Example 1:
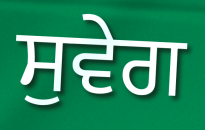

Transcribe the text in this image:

ਸੁਵੇਗ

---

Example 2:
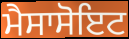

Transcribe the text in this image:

ਮੈਸਾਸੋਇਟ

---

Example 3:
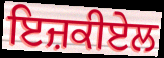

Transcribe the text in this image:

ਇਜ਼ਕੀਏਲ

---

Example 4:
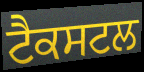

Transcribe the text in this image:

ਟੈਕਸਟਲ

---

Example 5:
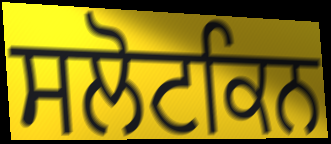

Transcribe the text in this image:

ਸਲੋਟਕਿਨ